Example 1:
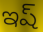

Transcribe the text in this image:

ఇష్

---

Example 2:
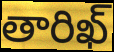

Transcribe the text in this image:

తారిఖ్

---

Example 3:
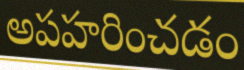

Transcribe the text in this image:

అపహరించడం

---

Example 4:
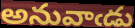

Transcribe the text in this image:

అనువాఁడు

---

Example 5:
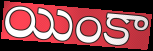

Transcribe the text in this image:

యింకా